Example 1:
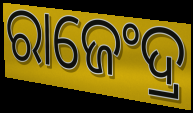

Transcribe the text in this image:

ରାଜେଂଦ୍ର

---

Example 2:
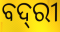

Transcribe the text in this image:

ବଦ୍‌ରୀ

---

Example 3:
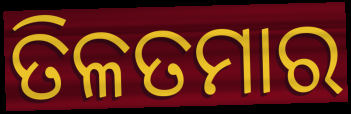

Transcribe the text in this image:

ତିଳତମାର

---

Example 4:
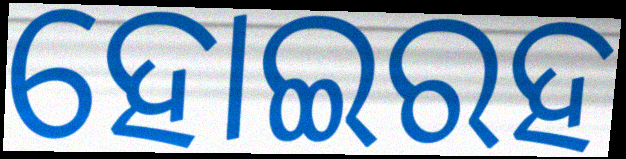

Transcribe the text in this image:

ହୋଇରହ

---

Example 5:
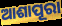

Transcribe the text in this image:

ଆଶାପୂରା